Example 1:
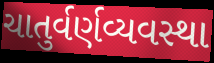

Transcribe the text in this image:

ચાતુર્વર્ણવ્યવસ્થા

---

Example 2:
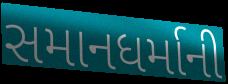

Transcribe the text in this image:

સમાનધર્માની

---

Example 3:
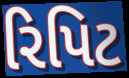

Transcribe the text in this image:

રિપિટ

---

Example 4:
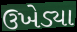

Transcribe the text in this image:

ઉખેડ્યા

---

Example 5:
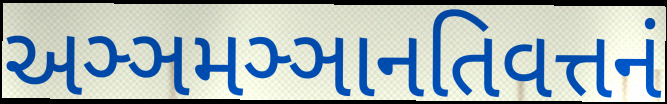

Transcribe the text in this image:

અઞ્ઞમઞ્ઞાનતિવત્તનં